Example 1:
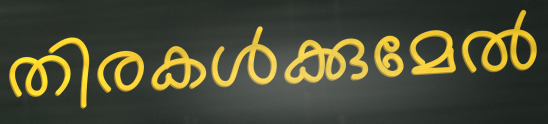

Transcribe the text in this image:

തിരകൾക്കുമേൽ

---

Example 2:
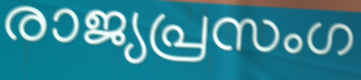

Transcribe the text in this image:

രാജ്യപ്രസംഗ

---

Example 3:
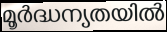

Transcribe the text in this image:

മൂർദ്ധന്യതയിൽ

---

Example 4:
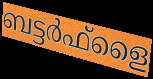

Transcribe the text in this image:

ബട്ടർഫ്ളൈ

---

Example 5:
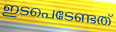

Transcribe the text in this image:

ഇടപെടേണ്ടത്